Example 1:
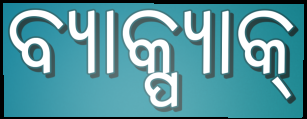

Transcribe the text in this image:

ବ୍ୟାକ୍ପ୍ୟାକ୍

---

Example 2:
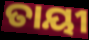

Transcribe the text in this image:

ତାୟୀ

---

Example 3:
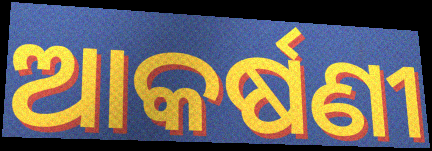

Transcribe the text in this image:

ଆକର୍ଷଣୀ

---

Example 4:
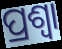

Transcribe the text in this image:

ପ୍ରଶ୍ଵା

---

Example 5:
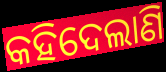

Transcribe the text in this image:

କହିଦେଲାଣି